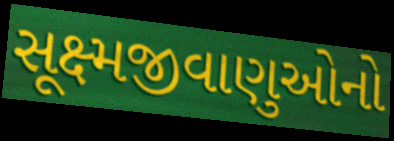
સૂક્ષ્મજીવાણુઓનો